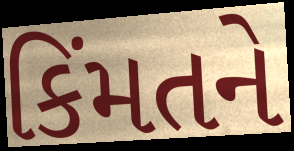
કિંમતને